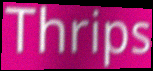
Thrips